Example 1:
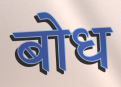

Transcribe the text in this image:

बोध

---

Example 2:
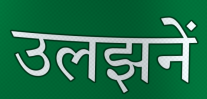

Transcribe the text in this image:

उलझनें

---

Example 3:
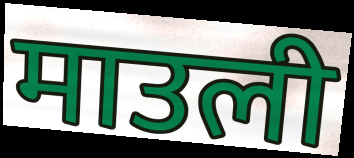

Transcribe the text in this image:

माउली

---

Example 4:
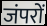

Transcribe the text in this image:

जंपरों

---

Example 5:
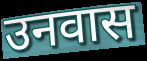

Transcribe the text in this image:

उनवास